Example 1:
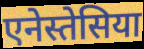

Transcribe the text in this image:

एनेस्तेसिया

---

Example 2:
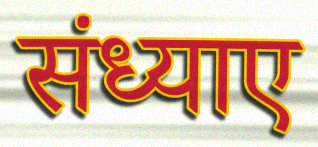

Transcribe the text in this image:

संध्याए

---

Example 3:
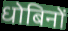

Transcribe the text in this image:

धोबिनों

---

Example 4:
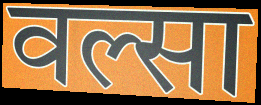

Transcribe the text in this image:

वल्सा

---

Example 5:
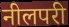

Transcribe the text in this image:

नीलपरी